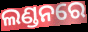
ଲଣ୍ଡନରେ